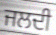
ਜਲਦੀ